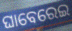
ଘାବେରେଇ